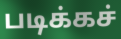
படிக்கச்